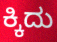
ಕ್ಕಿದು